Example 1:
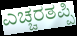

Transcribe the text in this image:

ಎಚ್ಚರತಪ್ಪಿ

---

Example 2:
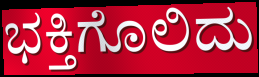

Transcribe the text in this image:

ಭಕ್ತಿಗೊಲಿದು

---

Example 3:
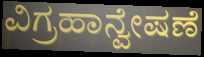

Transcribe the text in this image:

ವಿಗ್ರಹಾನ್ವೇಷಣೆ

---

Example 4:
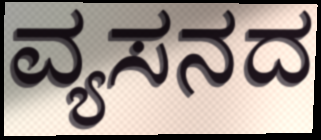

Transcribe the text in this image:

ವ್ಯಸನದ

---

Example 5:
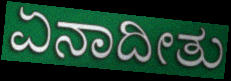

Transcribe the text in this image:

ಏನಾದೀತು